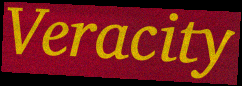
Veracity